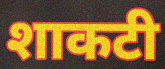
शाकटी